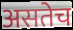
असतेच